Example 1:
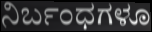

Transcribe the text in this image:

ನಿರ್ಬಂಧಗಳೂ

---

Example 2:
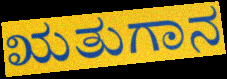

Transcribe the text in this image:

ಋತುಗಾನ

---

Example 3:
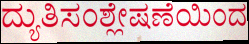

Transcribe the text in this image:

ದ್ಯುತಿಸಂಶ್ಲೇಷಣೆಯಿಂದ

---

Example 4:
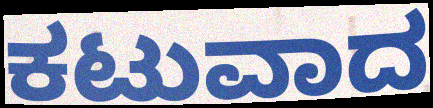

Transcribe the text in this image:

ಕಟುವಾದ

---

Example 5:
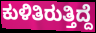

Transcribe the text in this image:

ಕುಳಿತಿರುತ್ತಿದ್ದೆ